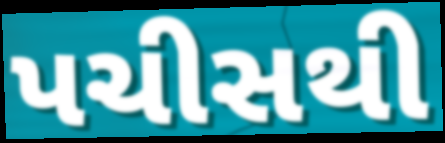
પચીસથી